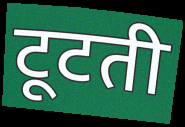
टूटती